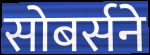
सोबर्सने